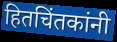
हितचिंतकांनी